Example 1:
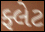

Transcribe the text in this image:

ફ્લેટ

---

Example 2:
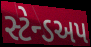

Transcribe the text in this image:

સ્ટેન્ડઅપ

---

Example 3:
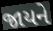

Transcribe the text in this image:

જાયને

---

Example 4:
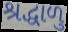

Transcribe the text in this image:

શ્રદ્ધાળુ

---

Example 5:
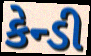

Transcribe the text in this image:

કેન્ડી